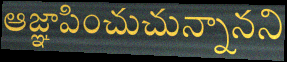
ఆజ్ఞాపించుచున్నానని